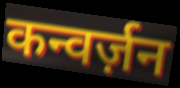
कन्वर्ज़न